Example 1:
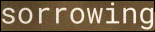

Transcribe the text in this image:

sorrowing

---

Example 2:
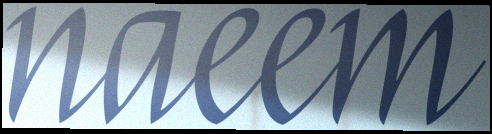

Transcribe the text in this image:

naeem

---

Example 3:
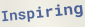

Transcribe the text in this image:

Inspiring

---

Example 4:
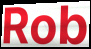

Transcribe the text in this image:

Rob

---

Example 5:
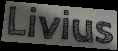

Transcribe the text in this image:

Livius